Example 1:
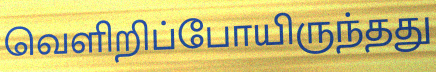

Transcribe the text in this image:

வெளிறிப்போயிருந்தது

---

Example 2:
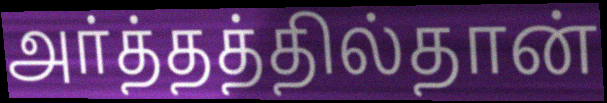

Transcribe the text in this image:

அர்த்தத்தில்தான்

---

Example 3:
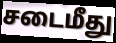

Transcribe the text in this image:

சடைமீது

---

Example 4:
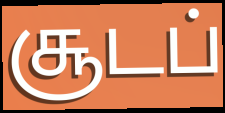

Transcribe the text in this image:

சூடப்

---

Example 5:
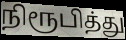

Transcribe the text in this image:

நிரூபித்து